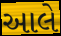
આલે